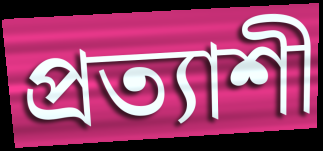
প্রত্যাশী